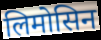
लिमोसिन